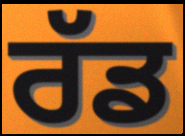
ਰੱਡ